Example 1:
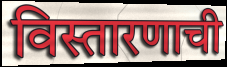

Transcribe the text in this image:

विस्तारणाची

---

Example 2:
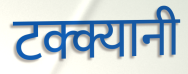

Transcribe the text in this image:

टक्क्यानी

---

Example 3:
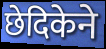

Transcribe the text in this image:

छेदिकेने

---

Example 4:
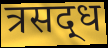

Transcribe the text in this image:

त्रसद्ध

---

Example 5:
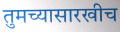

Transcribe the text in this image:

तुमच्यासारखीच